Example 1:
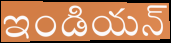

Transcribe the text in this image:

ఇండియన్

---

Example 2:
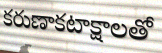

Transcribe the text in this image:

కరుణాకటాక్షాలతో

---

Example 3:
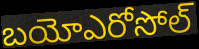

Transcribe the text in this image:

బయోఎరోసోల్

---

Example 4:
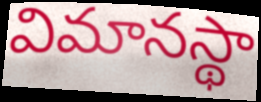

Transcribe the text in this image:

విమానస్థా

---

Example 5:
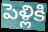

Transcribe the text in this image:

పెళ్లికి